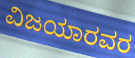
ವಿಜಯಾರವರ